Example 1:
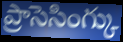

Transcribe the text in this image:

ప్రాసెసింగ్కు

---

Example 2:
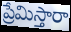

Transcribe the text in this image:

ప్రేమిస్తారా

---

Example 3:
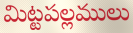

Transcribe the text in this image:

మిట్టపల్లములు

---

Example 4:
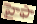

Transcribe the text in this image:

హైఫా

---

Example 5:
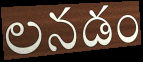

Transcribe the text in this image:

లనడం